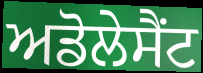
ਅਡੋਲੇਸੈਂਟ